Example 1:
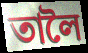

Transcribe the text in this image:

তালৈ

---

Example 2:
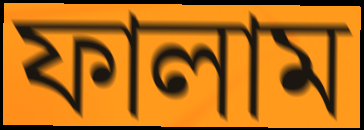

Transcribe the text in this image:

ফালাম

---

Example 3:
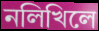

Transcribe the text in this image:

নলিখিলে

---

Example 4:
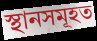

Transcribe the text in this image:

স্থানসমূহত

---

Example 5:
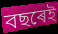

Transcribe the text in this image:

বছৰেই